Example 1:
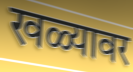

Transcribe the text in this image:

खळ्यावर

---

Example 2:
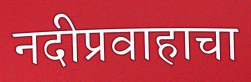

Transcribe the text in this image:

नदीप्रवाहाचा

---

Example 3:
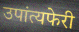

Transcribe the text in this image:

उपांत्यफेरी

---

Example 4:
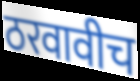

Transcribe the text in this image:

ठरवावीच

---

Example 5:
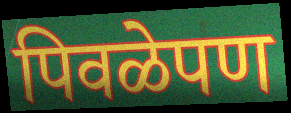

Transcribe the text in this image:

पिवळेपण